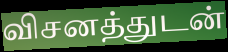
விசனத்துடன்